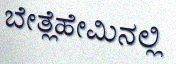
ಬೇತ್ಲೆಹೇಮಿನಲ್ಲಿ